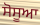
ਸੋਸੂਆ